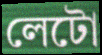
লেটো